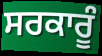
ਸਰਕਾਰੂੰ